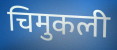
चिमुकली